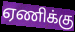
ஏணிக்கு